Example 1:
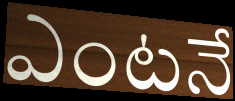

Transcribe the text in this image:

ఎంటనే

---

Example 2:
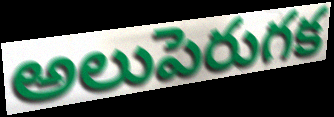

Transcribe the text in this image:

అలుపెరుగక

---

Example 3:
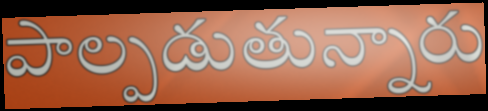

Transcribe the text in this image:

పాల్పడుతున్నారు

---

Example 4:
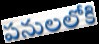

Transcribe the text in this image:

పనులలోకి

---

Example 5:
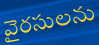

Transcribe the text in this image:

వైరసులను